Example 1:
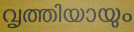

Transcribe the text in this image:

വൃത്തിയായും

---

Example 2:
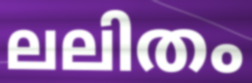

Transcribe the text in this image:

ലലിതം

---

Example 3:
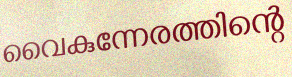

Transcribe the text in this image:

വൈകുന്നേരത്തിന്റെ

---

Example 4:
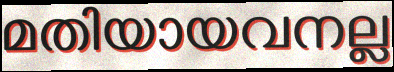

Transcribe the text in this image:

മതിയായവനല്ല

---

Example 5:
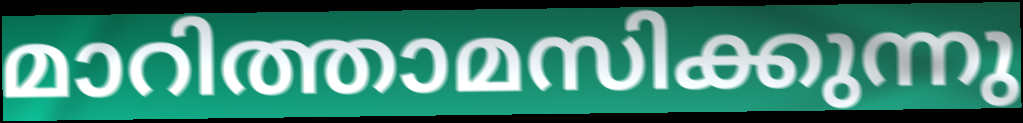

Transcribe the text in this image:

മാറിത്താമസിക്കുന്നു